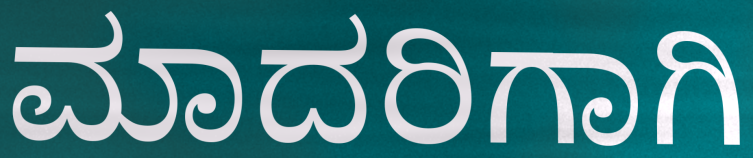
ಮಾದರಿಗಾಗಿ